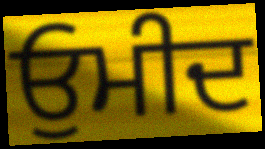
ਓੁਮੀਦ